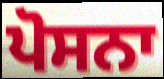
ਪੋਸਨਾ